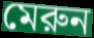
মেরুন